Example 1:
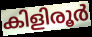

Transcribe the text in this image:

കിളിരൂർ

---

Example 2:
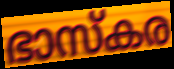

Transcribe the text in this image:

ഭാസ്കര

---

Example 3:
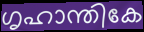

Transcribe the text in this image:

ഗൃഹാന്തികേ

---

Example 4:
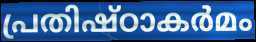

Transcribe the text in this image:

പ്രതിഷ്ഠാകർമം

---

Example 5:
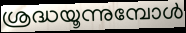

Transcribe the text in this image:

ശ്രദ്ധയൂന്നുമ്പോൾ